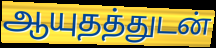
ஆயுதத்துடன்